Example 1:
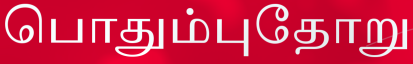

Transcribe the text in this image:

பொதும்புதோறு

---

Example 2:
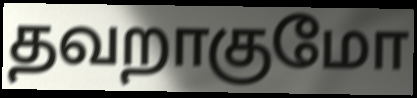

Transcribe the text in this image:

தவறாகுமோ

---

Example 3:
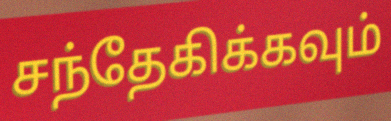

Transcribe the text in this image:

சந்தேகிக்கவும்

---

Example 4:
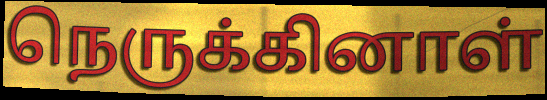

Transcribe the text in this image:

நெருக்கினாள்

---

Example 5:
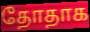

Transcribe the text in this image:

தோதாக